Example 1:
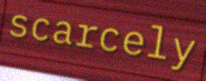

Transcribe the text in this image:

scarcely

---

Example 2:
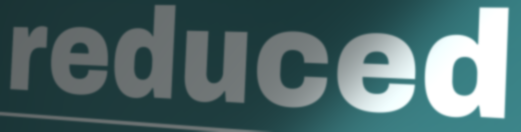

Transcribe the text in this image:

reduced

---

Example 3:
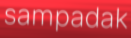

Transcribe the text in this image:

sampadak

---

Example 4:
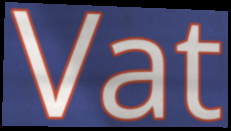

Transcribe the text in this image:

Vat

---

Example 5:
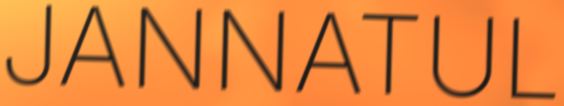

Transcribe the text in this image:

JANNATUL